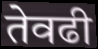
तेवढी